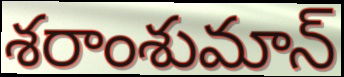
శరాంశుమాన్